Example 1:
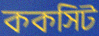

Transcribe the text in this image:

ককসিট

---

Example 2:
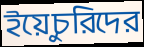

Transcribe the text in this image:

ইয়েচুরিদের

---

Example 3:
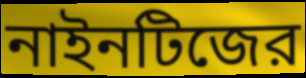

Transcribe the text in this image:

নাইনটিজের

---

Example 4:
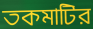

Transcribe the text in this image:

তকমাটির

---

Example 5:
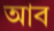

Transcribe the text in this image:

আব